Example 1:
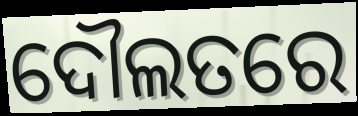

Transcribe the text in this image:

ଦୌଲତରେ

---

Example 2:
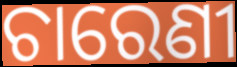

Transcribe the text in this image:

ଚାରେଣୀ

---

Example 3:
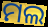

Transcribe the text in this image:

ମଲ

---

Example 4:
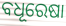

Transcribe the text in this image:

ବଧୂରେଷା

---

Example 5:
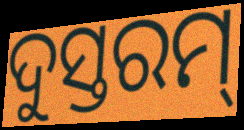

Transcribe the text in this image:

ଦୁସ୍ତରମ୍